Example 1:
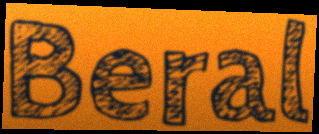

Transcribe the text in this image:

Beral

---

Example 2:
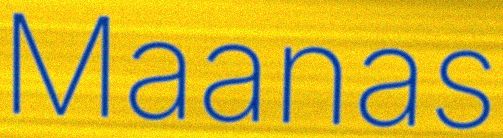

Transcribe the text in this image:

Maanas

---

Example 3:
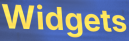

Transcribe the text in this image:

Widgets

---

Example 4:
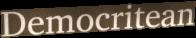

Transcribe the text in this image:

Democritean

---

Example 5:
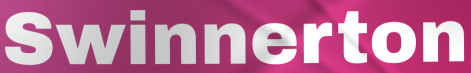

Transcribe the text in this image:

Swinnerton